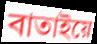
বাতাইয়ে